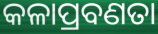
କଳାପ୍ରବଣତା